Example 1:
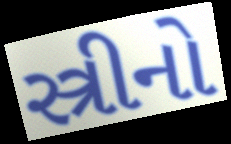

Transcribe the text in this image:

સ્ત્રીનો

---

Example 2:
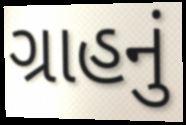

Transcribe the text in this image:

ગ્રાહનું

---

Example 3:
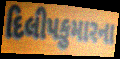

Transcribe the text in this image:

દિલીપકુમારના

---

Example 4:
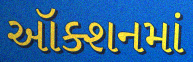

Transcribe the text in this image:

ઑક્શનમાં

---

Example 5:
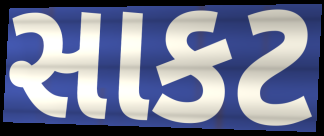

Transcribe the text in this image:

સાકટ